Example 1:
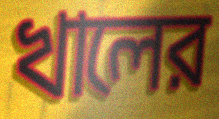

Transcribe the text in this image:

খালের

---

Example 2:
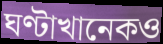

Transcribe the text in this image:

ঘণ্টাখানেকও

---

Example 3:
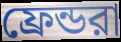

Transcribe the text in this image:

ফ্রেন্ডরা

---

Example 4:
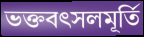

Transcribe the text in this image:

ভক্তবৎসলমূর্তি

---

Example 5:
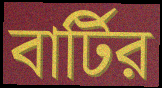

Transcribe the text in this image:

বার্টির